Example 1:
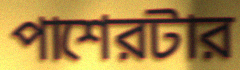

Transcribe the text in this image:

পাশেরটার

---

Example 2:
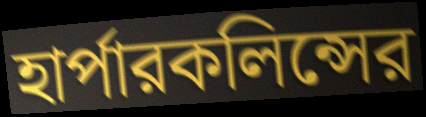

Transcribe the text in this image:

হার্পারকলিন্সের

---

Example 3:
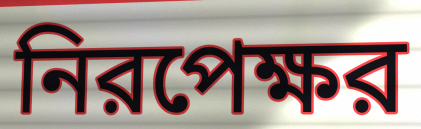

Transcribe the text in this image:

নিরপেক্ষর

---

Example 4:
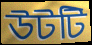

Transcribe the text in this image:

উটটি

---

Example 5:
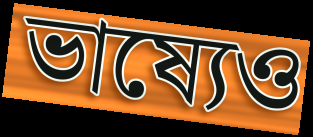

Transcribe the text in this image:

ভাষ্যেও